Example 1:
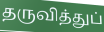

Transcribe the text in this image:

தருவித்துப்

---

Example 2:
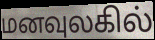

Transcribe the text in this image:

மனவுலகில்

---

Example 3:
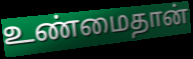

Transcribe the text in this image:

உண்மைதான்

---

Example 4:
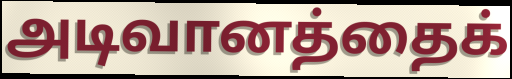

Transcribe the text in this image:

அடிவானத்தைக்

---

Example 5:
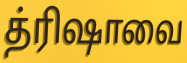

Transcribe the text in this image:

த்ரிஷாவை